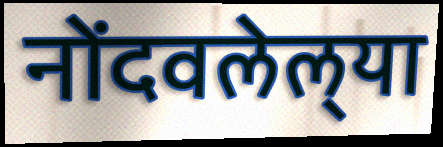
नोंदवलेल्या